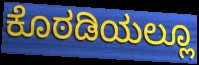
ಕೊಠಡಿಯಲ್ಲೂ